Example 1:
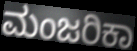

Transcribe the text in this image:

ಮಂಜರಿಕಾ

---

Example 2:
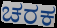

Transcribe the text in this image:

ಚರಕ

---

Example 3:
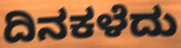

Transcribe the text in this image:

ದಿನಕಳೆದು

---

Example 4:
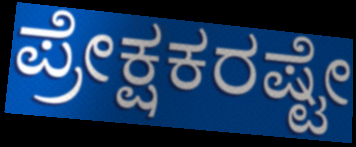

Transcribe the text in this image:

ಪ್ರೇಕ್ಷಕರಷ್ಟೇ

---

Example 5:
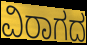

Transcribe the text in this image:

ವಿರಾಗದ